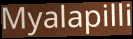
Myalapilli